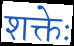
शक्तेः